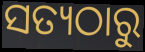
ସତ୍ୟଠାରୁ